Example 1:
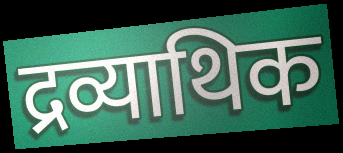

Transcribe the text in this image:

द्रव्याथिक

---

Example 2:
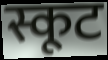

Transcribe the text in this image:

स्कूट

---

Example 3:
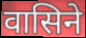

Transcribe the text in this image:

वासिने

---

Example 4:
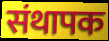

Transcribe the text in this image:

संथापक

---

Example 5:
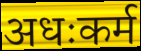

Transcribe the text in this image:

अधःकर्म